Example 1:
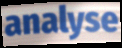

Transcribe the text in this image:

analyse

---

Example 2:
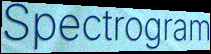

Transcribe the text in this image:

Spectrogram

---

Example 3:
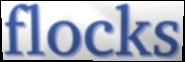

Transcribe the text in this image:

flocks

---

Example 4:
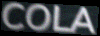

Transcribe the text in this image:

COLA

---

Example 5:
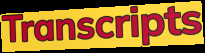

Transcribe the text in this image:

Transcripts